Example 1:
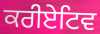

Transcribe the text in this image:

ਕਰੀਏਟਿਵ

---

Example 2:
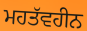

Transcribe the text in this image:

ਮਹਤੱਵਹੀਨ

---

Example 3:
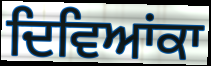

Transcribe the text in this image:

ਦਿਵਿਆਂਕਾ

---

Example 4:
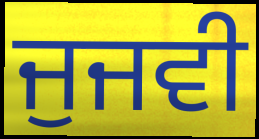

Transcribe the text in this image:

ਜੁਜਵੀ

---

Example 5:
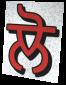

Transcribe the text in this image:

ਲੋ